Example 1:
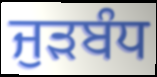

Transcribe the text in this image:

ਜੁੜਬੰਧ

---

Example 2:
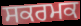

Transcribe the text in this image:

ਸਕਰਮਕ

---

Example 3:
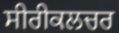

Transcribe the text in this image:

ਸੀਰੀਕਲਚਰ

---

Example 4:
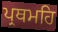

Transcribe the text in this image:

ਪ੍ਰਥਮਹਿ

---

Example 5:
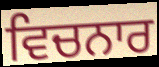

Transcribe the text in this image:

ਵਿਚਨਾਰ